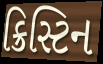
ક્રિસ્ટિન